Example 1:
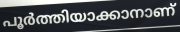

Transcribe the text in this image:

പൂർത്തിയാക്കാനാണ്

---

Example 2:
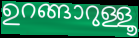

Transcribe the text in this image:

ഉറങ്ങാറുള്ളൂ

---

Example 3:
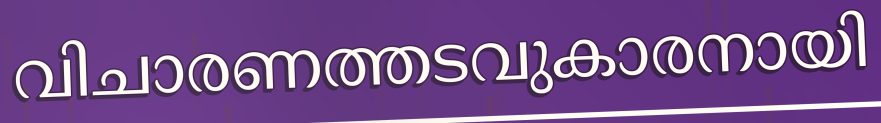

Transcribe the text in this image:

വിചാരണത്തടവുകാരനായി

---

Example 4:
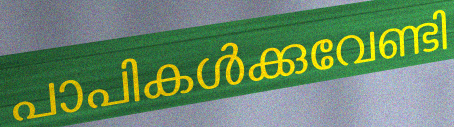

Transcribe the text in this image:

പാപികൾക്കുവേണ്ടി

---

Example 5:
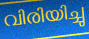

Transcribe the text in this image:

വിരിയിച്ചു